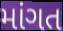
માંગત